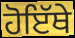
ਹੋਇੱਥੇ